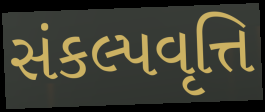
સંકલ્પવૃત્તિ